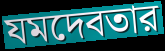
যমদেবতার